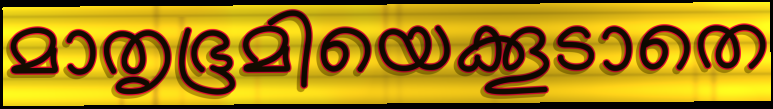
മാതൃഭൂമിയെക്കൂടാതെ